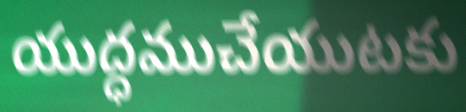
యుద్ధముచేయుటకు